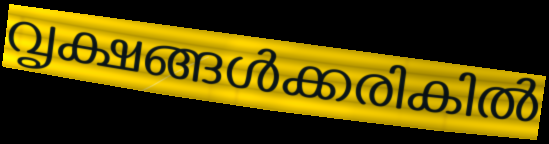
വൃക്ഷങ്ങൾക്കരികിൽ